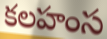
కలహంస